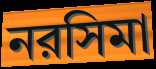
নরসিমা